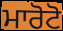
ਮਾਰੋਟੋ